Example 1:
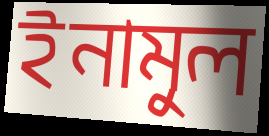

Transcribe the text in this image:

ইনামুল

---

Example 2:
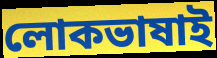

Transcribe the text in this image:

লোকভাষাই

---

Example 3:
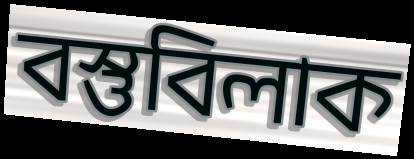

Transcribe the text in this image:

বস্তুবিলাক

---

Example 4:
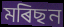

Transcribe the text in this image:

মৰিছন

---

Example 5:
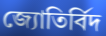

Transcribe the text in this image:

জ্যোতিৰ্বিদ